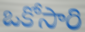
ఒకోసారి